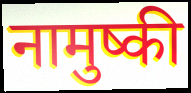
नामुष्की